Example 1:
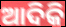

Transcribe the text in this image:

ଆଦିକି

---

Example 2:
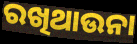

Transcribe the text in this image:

ରଖିଥାଉନା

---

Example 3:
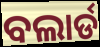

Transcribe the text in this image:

ବଲାର୍ଡ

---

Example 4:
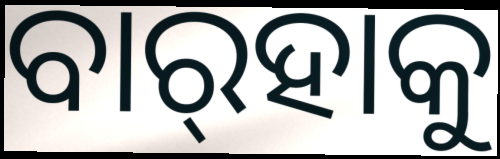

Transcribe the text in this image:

ବାର୍‍ହାକୁ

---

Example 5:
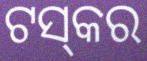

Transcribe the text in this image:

ଟସ୍‍କର